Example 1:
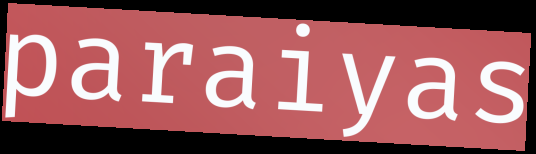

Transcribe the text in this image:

paraiyas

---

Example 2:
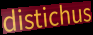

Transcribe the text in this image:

distichus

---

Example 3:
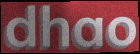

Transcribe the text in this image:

dhao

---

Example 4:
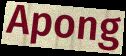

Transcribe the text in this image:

Apong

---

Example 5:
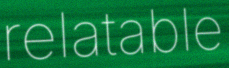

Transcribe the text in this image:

relatable